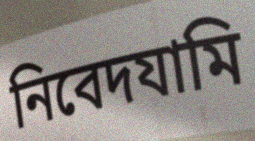
নিবেদযামি